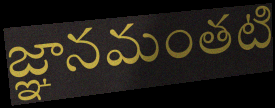
జ్ఞానమంతటి